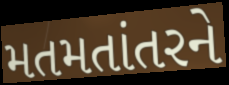
મતમતાંતરને